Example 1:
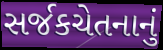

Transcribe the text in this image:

સર્જકચેતનાનું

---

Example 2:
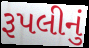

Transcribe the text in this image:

રૂપલીનું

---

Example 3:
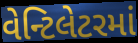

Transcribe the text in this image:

વેન્ટિલેટરમાં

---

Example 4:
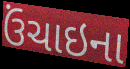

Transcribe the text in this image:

ઉંચાઇના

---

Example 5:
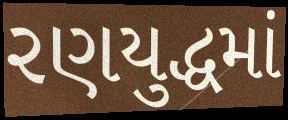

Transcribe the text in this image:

રણયુદ્ધમાં